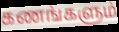
கணங்களும்